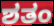
ಶತಂ